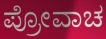
ಪ್ರೋವಾಚ